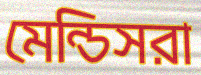
মেন্ডিসরা